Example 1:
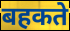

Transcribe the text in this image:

बहकते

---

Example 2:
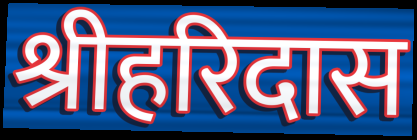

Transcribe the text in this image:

श्रीहरिदास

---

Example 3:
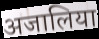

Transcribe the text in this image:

अजालिया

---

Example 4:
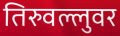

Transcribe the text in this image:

तिरुवल्लुवर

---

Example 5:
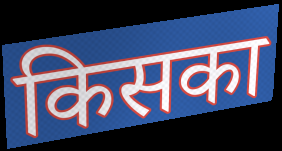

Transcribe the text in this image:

किसका